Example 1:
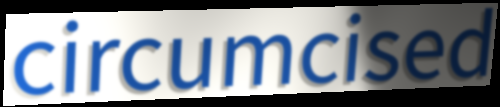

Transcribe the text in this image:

circumcised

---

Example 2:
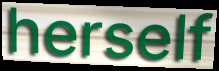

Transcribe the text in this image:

herself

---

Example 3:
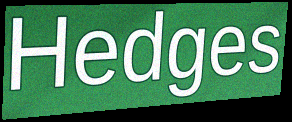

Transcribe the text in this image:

Hedges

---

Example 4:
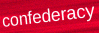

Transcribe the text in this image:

confederacy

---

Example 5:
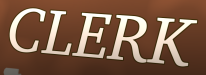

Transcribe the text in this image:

CLERK